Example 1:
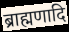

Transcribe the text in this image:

ब्राह्मणादि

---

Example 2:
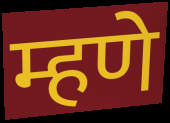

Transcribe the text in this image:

म्हणे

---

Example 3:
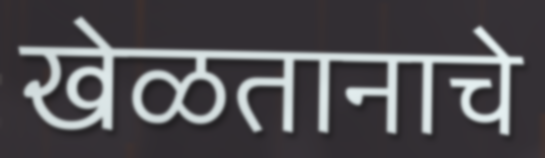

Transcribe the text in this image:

खेळतानाचे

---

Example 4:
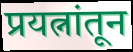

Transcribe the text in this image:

प्रयत्नांतून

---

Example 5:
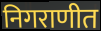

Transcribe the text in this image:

निगराणीत